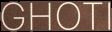
GHOTI